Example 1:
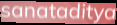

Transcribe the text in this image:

sanataditya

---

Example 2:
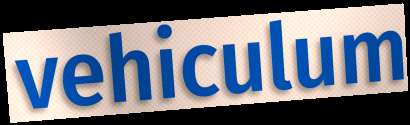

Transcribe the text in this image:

vehiculum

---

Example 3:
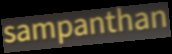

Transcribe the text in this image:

sampanthan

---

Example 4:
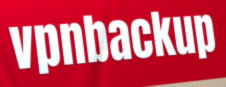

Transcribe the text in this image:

vpnbackup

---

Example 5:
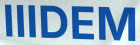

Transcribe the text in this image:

IIIDEM